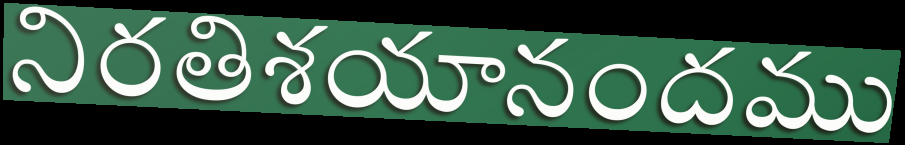
నిరతిశయానందము